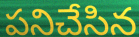
పనిచేసిన